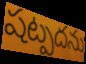
షట్పదను